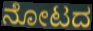
ನೋಟದ